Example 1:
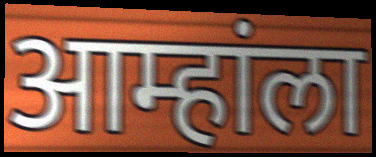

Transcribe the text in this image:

आम्हांला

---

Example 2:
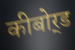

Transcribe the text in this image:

कीबोर्ड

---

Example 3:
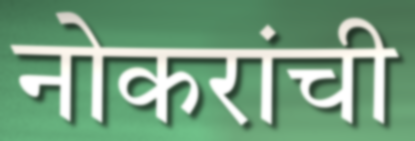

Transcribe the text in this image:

नोकरांची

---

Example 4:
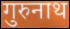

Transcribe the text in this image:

गुरुनाथ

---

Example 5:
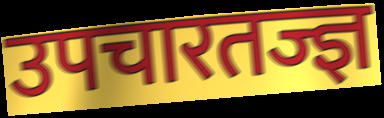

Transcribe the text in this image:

उपचारतज्ज्ञ